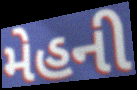
મેહની